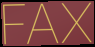
FAX